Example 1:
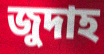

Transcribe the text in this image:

জুদাহ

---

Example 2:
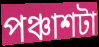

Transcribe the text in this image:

পঞ্চাশটা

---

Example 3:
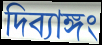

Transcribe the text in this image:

দিব্যাঙ্গং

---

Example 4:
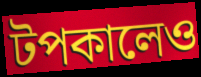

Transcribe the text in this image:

টপকালেও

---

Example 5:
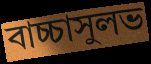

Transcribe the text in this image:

বাচ্চাসুলভ